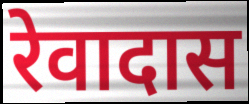
रेवादास